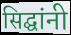
सिद्घांनी